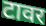
टावर